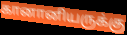
கானானியருக்கு